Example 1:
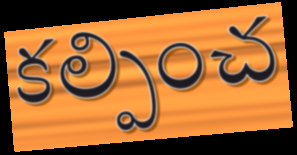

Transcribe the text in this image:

కల్పించ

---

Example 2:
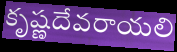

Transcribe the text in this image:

కృష్ణదేవరాయలి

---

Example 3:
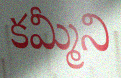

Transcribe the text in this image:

కమ్మీని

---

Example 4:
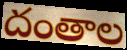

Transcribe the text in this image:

దంతాల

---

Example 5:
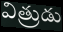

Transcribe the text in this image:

విత్రుడు